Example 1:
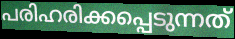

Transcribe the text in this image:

പരിഹരിക്കപ്പെടുന്നത്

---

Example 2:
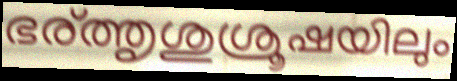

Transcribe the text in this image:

ഭര്ത്തൃശുശ്രൂഷയിലും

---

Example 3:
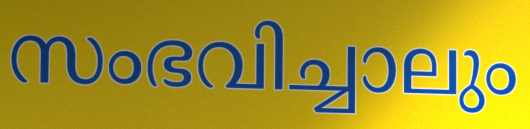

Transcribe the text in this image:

സംഭവിച്ചാലും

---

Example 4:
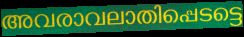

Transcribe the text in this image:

അവരാവലാതിപ്പെടട്ടെ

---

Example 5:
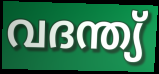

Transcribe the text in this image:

വദന്ത്യ്